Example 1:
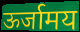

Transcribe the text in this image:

ऊर्जामय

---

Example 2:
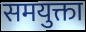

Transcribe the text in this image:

समयुक्ता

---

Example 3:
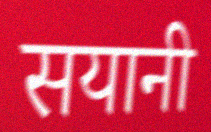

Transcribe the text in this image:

सयानी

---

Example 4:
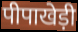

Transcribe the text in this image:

पीपाखेड़ी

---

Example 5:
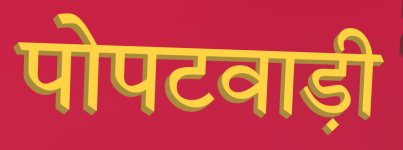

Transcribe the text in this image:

पोपटवाड़ी